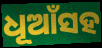
ଧୂଆଁସହ